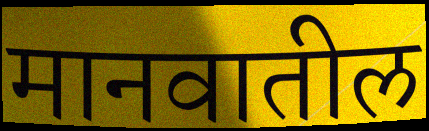
मानवातील